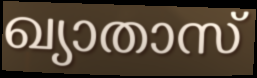
ഖ്യാതാസ്